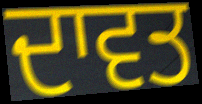
ਦਾਵਤ